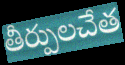
తీర్పులచేత